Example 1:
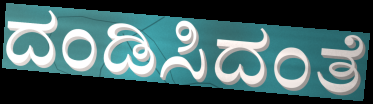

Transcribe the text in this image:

ದಂಡಿಸಿದಂತೆ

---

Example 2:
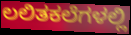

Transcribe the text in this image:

ಲಲಿತಕಲೆಗಳಲ್ಲಿ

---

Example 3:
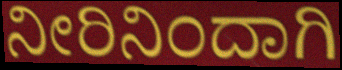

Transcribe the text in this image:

ನೀರಿನಿಂದಾಗಿ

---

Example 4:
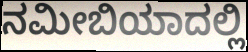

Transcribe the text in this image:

ನಮೀಬಿಯಾದಲ್ಲಿ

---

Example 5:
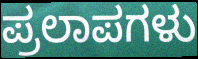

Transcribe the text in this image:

ಪ್ರಲಾಪಗಳು